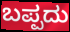
ಬಪ್ಪದು